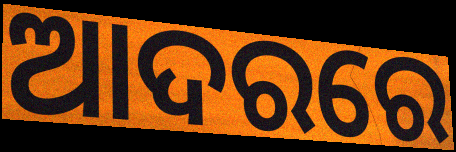
ଆଦରରେ